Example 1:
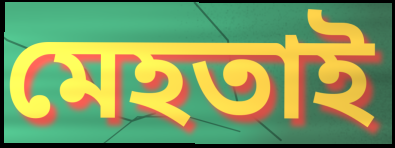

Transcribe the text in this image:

মেহতাই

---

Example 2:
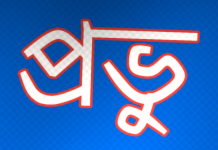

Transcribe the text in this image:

প্ৰভু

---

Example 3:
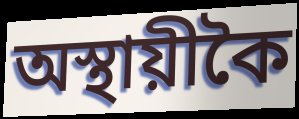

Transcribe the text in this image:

অস্থায়ীকৈ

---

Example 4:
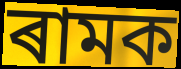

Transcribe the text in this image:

ৰামক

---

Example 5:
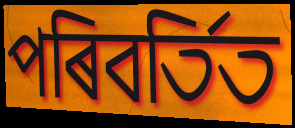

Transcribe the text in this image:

পৰিবৰ্তিত